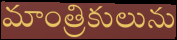
మాంత్రికులును